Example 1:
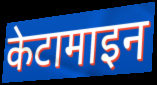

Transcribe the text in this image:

केटामाइन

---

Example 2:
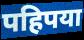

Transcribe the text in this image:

पहिपया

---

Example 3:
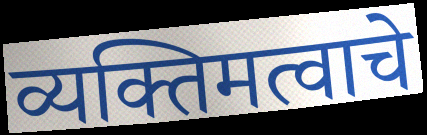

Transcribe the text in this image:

व्यक्तिमत्वाचे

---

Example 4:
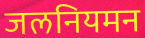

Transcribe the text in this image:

जलनियमन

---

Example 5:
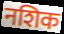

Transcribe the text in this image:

नशिक